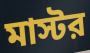
মাস্টর